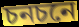
চনচনে